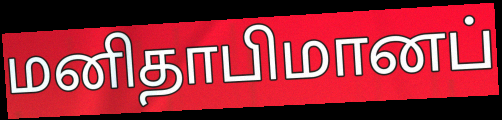
மனிதாபிமானப்